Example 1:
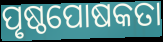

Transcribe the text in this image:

ପୃଷ୍ଠପୋଷକତା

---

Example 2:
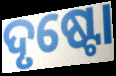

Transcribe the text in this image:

ଦୃଷ୍ଟୋ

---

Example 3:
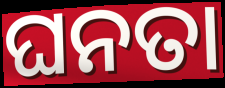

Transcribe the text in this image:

ଘନତା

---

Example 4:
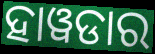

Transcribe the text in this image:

ହାୱଡାର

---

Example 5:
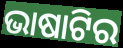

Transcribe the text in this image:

ଭାଷାଟିର